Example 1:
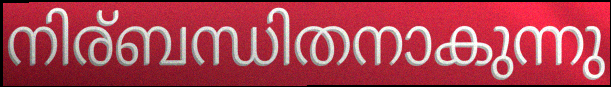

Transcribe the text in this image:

നിര്ബന്ധിതനാകുന്നു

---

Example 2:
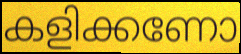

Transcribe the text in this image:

കളിക്കണോ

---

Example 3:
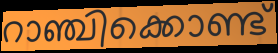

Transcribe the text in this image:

റാഞ്ചിക്കൊണ്ട്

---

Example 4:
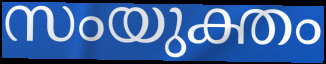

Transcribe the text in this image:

സംയുക്തം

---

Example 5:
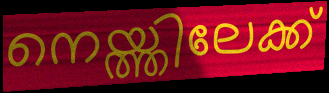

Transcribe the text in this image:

നെയ്ത്തിലേക്ക്